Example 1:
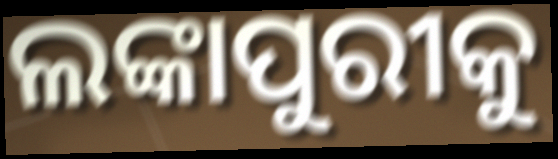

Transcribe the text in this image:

ଲଙ୍କାପୁରୀକୁ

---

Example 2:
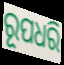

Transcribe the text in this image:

ରୂପଧରି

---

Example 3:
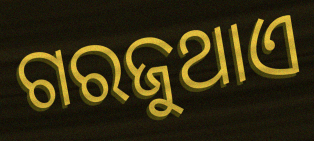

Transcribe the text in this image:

ଗରଜୁଥାଏ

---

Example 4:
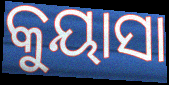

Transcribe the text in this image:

କୁୟାସା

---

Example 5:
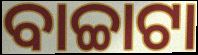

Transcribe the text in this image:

ବାଚ୍ଚାଟା